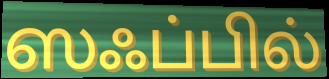
ஸஃப்பில்